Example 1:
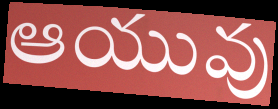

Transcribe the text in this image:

ఆయువు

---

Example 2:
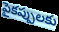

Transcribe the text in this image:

పైకప్పులకు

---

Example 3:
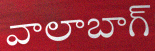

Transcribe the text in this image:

వాలాబాగ్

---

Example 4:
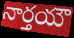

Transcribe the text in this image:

నార్తయౌ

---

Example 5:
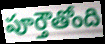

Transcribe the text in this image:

పూర్తౌతోంది